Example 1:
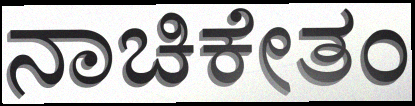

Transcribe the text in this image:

ನಾಚಿಕೇತಂ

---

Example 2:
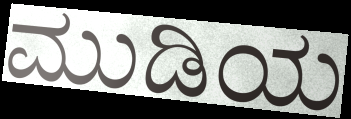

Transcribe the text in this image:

ಮುಡಿಯ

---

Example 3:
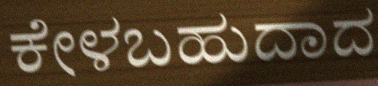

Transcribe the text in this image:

ಕೇಳಬಹುದಾದ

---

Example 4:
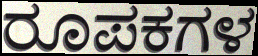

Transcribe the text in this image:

ರೂಪಕಗಳ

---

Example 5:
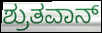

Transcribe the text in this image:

ಶ್ರುತವಾನ್